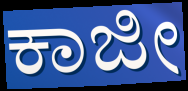
ಕಾಜೀ